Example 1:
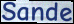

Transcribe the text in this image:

Sande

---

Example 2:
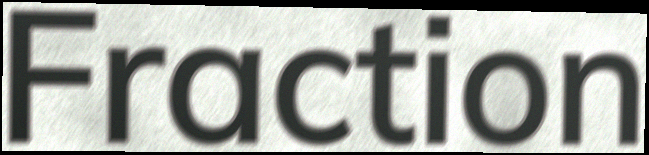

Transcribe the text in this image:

Fraction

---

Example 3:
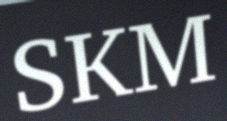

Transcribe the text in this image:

SKM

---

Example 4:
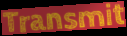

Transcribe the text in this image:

Transmit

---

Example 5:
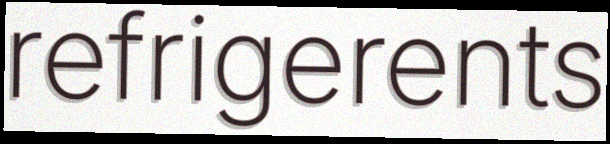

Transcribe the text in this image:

refrigerents